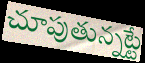
చూపుతున్నట్టే